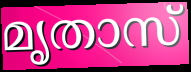
മൃതാസ്